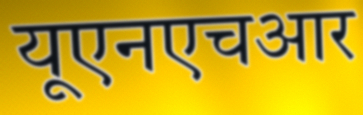
यूएनएचआर